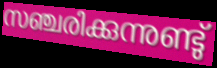
സഞ്ചരിക്കുന്നുണ്ടു്